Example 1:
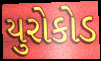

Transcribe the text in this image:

યુરોકોડ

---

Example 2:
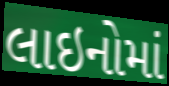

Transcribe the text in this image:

લાઇનોમાં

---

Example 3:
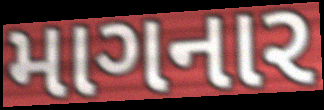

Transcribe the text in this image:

માગનાર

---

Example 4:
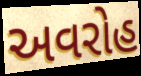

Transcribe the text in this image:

અવરોહ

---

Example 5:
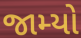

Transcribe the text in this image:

જામ્યો